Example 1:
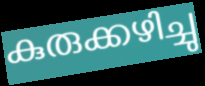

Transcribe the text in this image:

കുരുക്കഴിച്ചു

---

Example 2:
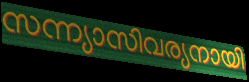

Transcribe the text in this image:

സന്ന്യാസിവര്യനായി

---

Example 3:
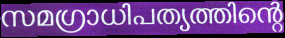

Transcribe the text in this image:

സമഗ്രാധിപത്യത്തിന്റെ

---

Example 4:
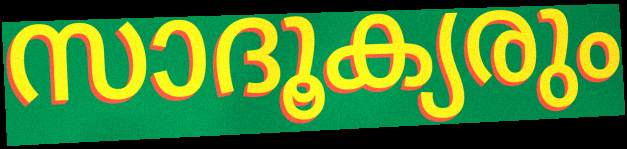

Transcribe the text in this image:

സാദൂക്യരും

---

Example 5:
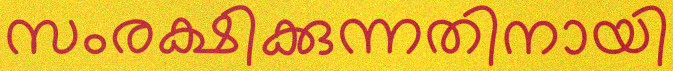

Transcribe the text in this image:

സംരക്ഷിക്കുന്നതിനായി